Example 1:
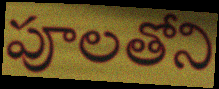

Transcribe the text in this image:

పూలతోని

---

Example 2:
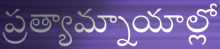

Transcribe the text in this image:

ప్రత్యామ్నాయాల్లో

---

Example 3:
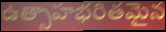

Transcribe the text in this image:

ఉత్సాహభరితమైన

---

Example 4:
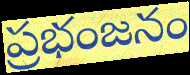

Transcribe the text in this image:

ప్రభంజనం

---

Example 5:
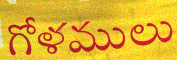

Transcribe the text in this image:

గోళములు